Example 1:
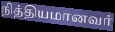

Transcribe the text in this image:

நித்தியமானவர்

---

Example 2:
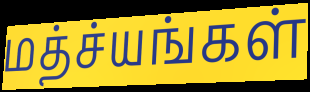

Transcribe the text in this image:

மத்ச்யங்கள்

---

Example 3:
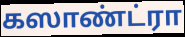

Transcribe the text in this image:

கஸாண்ட்ரா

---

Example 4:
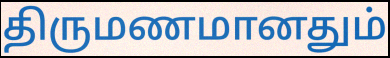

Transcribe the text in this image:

திருமணமானதும்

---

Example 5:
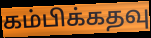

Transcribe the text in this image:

கம்பிக்கதவு